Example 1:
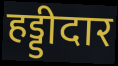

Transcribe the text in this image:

हड्डीदार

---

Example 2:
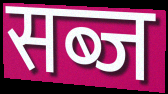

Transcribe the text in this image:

सब्ज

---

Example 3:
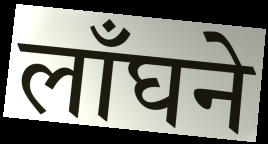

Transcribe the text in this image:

लाँघने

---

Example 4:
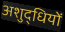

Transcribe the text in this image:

अशुद्धियों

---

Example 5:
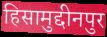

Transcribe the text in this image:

हिसामुद्दीनपुर